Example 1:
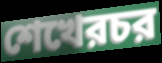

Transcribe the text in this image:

শেখেরচর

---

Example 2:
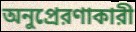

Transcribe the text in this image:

অনুপ্রেরণাকারী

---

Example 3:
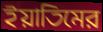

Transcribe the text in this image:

ইয়াতিমের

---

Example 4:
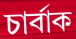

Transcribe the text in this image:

চার্বাক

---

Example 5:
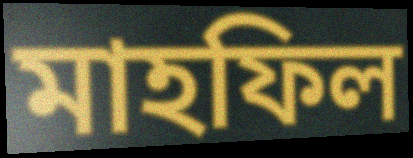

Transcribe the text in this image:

মাহফিল